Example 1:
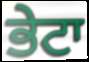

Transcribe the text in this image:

ਭੇਟਾ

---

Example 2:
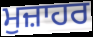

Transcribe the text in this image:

ਮੁਜ਼ਾਹਰ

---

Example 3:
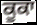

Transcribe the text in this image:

ਕੂਕਾ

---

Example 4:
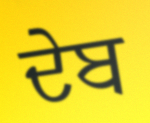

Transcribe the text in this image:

ਦੇਬ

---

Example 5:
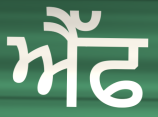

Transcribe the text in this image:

ਐੈੱਫ